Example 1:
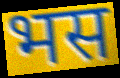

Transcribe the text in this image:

भस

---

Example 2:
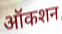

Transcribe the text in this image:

ऑकशन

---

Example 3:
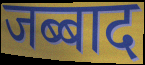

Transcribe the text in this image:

जब्बाद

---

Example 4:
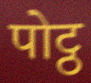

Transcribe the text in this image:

पोट्ठ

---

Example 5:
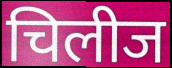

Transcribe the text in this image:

चिलीज